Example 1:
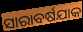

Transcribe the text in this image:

ସାରାବର୍ଷଯାକ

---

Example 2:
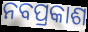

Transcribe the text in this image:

ନବପ୍ରକାଶ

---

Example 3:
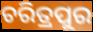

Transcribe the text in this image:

ଚରିତ୍ରପୁର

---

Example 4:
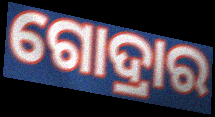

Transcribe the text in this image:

ଗୋଦ୍ରାର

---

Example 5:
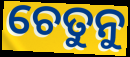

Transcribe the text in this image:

ଚେତୁନୁ